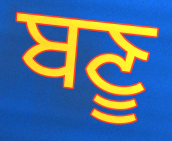
ਬਣੂ